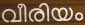
വീരിയം